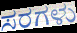
ಸರಗಳು